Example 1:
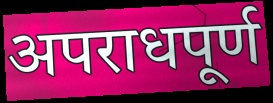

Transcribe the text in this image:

अपराधपूर्ण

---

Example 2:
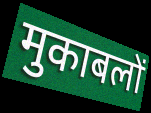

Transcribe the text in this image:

मुकाबलों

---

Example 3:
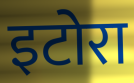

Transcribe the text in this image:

इटोरा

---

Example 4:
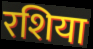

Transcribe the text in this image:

रशिया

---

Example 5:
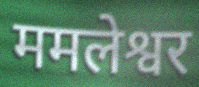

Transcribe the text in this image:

ममलेश्वर